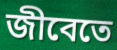
জীবেতে